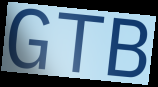
GTB